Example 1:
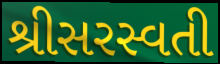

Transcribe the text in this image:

શ્રીસરસ્વતી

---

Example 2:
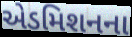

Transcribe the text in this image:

એડમિશનના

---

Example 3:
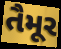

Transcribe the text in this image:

તૈમૂર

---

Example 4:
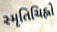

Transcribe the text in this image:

સ્મૃતિચિહ્નો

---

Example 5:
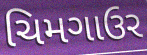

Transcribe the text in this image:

ચિમગાઉર